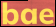
bae